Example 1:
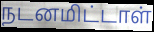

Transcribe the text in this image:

நடனமிட்டாள்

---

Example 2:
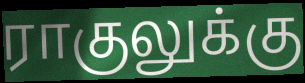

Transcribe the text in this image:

ராகுலுக்கு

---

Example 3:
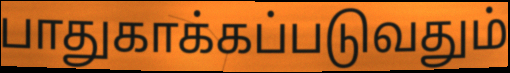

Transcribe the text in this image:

பாதுகாக்கப்படுவதும்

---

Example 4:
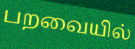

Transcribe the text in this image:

பறவையில்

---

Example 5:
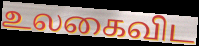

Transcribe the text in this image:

உலகைவிட